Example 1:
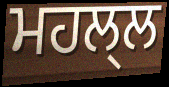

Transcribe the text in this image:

ਮਹਲ੍ਲ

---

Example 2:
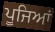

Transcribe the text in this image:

ਪੂਜਿਆਂ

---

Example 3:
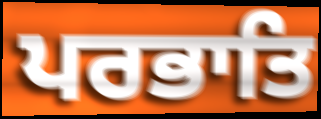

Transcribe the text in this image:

ਪਰਭਾਤਿ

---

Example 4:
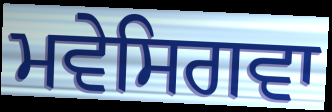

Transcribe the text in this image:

ਮਵੇਸਿਗਵਾ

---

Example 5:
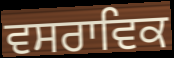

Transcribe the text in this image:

ਵਸਰਾਵਿਕ